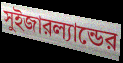
সুইজারল্যান্ডের